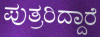
ಪುತ್ರರಿದ್ದಾರೆ